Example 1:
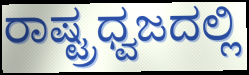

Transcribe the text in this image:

ರಾಷ್ಟ್ರಧ್ವಜದಲ್ಲಿ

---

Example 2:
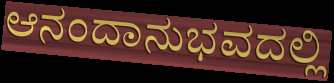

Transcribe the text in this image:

ಆನಂದಾನುಭವದಲ್ಲಿ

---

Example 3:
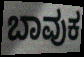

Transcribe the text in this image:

ಬಾವುಕ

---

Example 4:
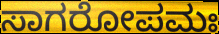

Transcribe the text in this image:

ಸಾಗರೋಪಮಃ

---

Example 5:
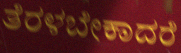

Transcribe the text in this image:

ತೆರಳಬೇಕಾದರೆ